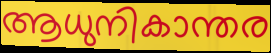
ആധുനികാന്തര